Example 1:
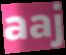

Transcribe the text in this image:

aaj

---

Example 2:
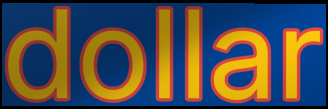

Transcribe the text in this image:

dollar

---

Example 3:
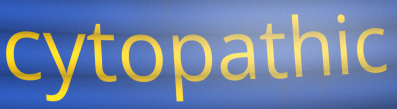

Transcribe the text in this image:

cytopathic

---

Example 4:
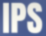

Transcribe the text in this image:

IPS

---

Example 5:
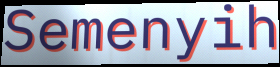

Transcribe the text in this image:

Semenyih